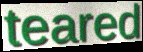
teared